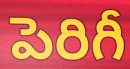
పెరిగీ